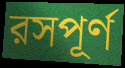
রসপূর্ণ